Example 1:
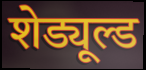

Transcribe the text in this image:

शेड्यूल्ड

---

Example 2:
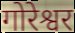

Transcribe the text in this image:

गोरेश्वर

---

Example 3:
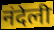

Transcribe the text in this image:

नंदेली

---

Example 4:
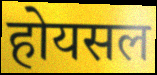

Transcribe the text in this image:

होयसल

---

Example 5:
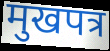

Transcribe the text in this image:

मुखपत्र